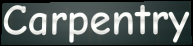
Carpentry